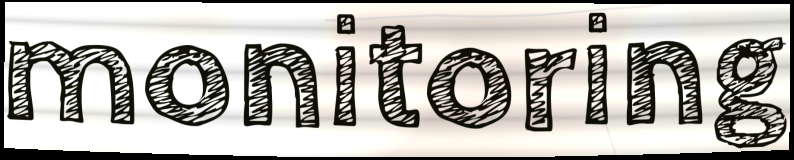
monitoring